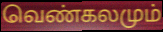
வெண்கலமும்